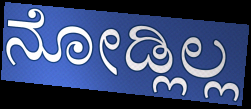
ನೋಡ್ಲಿಲ್ಲ